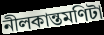
নীলকান্তমণিটা